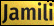
Jamili